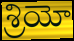
శ్రియో